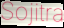
Sojitra